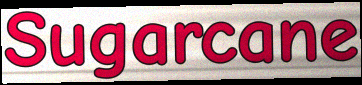
Sugarcane